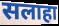
सलाहा